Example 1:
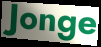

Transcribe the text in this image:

Jonge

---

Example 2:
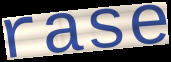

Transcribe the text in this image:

rase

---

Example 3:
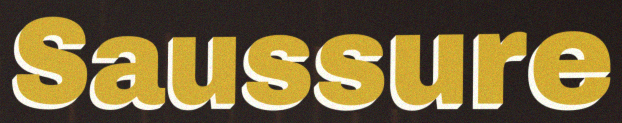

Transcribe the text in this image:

Saussure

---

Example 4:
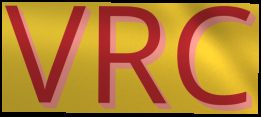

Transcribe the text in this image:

VRC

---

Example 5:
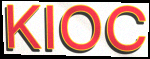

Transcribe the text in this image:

KIOC